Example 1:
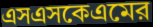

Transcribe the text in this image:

এসএসকেএমের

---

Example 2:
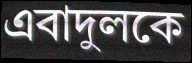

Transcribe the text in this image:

এবাদুলকে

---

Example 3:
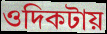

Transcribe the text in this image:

ওদিকটায়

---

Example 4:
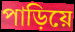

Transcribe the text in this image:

পাড়িয়ে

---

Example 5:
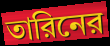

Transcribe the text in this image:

তারিনের